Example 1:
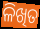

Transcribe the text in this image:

ଳିଖିତ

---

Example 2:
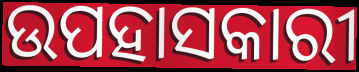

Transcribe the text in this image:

ଉପହାସକାରୀ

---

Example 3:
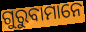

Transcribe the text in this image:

ଗୁରୁବାମାନେ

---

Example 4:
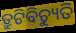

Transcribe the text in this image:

ତ୍ରୁଟିବିଚ୍ୟୁତି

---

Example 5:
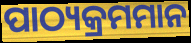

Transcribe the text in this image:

ପାଠ୍ୟକ୍ରମମାନ